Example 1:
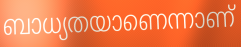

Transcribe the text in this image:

ബാധ്യതയാണെന്നാണ്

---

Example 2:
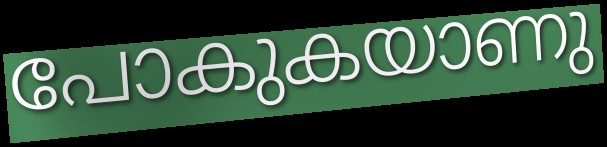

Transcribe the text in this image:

പോകുകയാണു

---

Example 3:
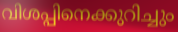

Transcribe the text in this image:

വിശപ്പിനെക്കുറിച്ചും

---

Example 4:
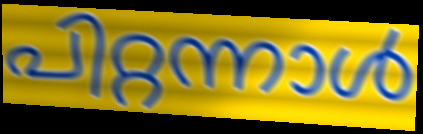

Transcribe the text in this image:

പിറ്റന്നാൾ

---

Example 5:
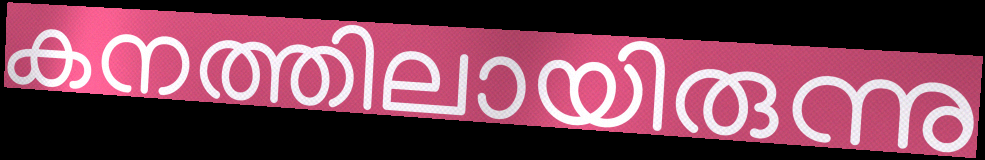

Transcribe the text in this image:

കനത്തിലായിരുന്നു